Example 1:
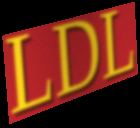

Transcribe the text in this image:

LDL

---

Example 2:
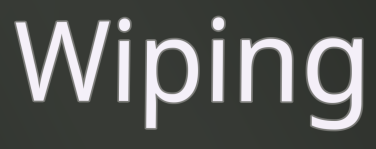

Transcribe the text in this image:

Wiping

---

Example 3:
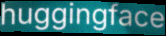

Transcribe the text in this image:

huggingface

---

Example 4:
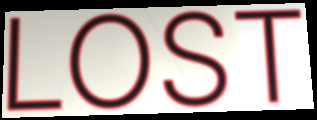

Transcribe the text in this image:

LOST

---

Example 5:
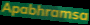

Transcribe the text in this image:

Apabhramsa